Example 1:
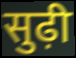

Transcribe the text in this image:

सुढ़ी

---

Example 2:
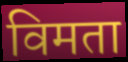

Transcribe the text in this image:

विमता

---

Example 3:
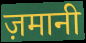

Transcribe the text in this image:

ज़मानी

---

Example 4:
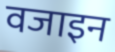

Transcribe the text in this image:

वजाइन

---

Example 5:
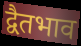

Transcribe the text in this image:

द्वैतभाव